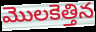
మొలకెత్తిన